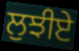
ਲੁਝੀਏ